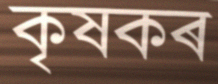
কৃষকৰ